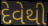
દેવેથી